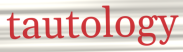
tautology